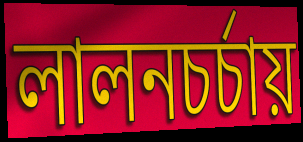
লালনচর্চায়